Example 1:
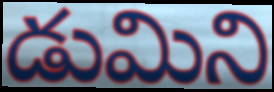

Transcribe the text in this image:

డుమిని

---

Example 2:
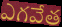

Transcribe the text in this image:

ఎగవేత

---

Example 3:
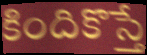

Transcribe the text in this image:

కిందికొస్తే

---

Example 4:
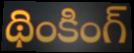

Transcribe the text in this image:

థింకింగ్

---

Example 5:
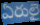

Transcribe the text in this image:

ఏరులై